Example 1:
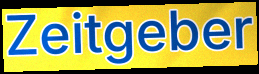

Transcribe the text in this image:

Zeitgeber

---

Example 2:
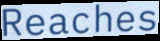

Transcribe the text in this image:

Reaches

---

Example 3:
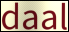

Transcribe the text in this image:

daal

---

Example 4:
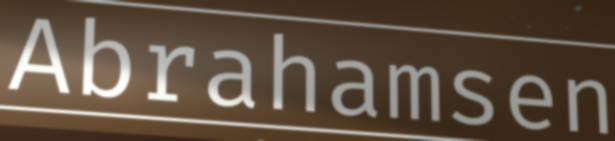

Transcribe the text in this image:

Abrahamsen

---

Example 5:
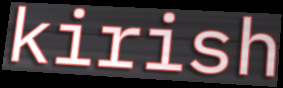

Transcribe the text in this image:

kirish